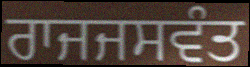
ਰਾਜਜਸਵੰਤ